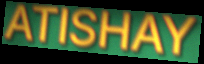
ATISHAY